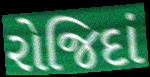
રોજિદાં